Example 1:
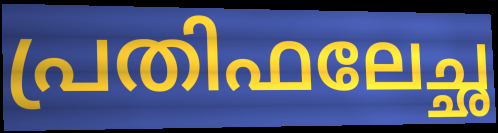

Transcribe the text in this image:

പ്രതിഫലേച്ഛ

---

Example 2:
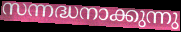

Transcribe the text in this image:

സന്നദ്ധനാക്കുന്നു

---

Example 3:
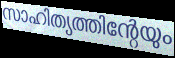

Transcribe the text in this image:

സാഹിത്യത്തിന്റേയും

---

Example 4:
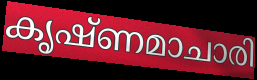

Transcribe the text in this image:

കൃഷ്ണമാചാരി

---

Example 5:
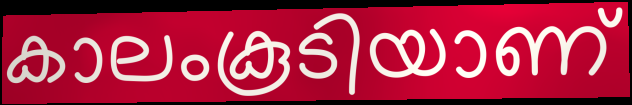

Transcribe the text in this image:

കാലംകൂടിയാണ്